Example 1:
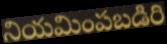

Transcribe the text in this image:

నియమింపబడిరి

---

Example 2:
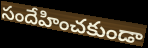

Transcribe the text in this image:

సందేహించకుండా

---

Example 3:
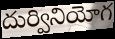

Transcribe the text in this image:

దుర్వినియోగ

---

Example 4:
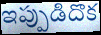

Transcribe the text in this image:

ఇప్పుడిదొక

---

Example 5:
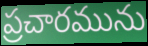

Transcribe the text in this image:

ప్రచారమును